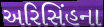
અરિસિંહના